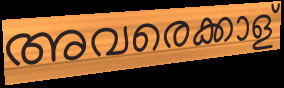
അവരെക്കാള്